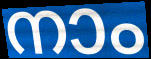
നാം